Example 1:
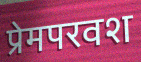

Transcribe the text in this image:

प्रेमपरवश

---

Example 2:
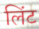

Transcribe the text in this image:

लिंट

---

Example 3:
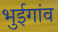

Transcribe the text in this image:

भुईगांव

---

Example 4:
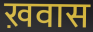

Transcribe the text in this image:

ख़वास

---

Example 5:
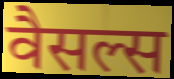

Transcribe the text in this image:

वैसल्स